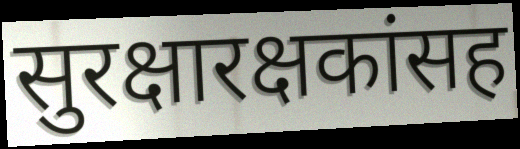
सुरक्षारक्षकांसह